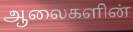
ஆலைகளின்